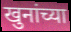
खुनांच्या